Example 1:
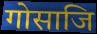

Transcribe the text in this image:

गोसाजि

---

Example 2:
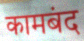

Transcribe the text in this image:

कामबंद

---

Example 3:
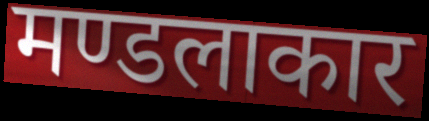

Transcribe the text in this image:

मण्डलाकार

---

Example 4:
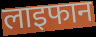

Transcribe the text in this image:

लाइफान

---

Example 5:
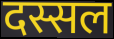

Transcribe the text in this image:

दस्सल